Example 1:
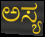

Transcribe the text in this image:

ಅಸ್ಯ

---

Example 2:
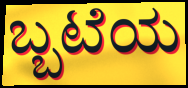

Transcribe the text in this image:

ಬ್ಬಟೆಯ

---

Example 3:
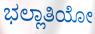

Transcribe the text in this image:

ಭಲ್ಲಾತಿಯೋ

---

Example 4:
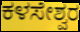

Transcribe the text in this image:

ಕಳಸೇಶ್ವರ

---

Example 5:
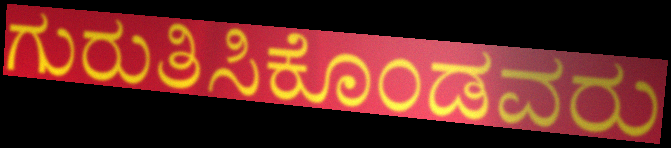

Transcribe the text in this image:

ಗುರುತಿಸಿಕೊಂಡವರು